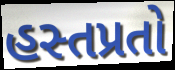
હસ્તપ્રતો